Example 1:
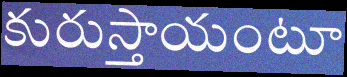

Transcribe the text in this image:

కురుస్తాయంటూ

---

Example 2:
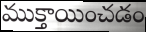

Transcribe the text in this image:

ముక్తాయించడం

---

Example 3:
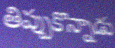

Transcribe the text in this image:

తిప్పుకొన్నాడు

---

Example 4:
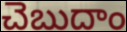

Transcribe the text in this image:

చెబుదాం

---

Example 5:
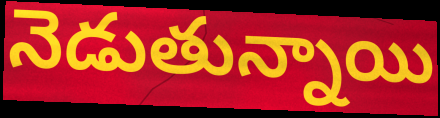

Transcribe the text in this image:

నెడుతున్నాయి